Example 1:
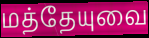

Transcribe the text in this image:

மத்தேயுவை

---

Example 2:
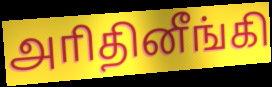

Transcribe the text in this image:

அரிதினீங்கி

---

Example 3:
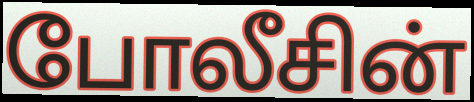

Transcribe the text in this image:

போலீசின்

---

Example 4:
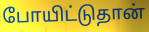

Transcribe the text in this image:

போயிட்டுதான்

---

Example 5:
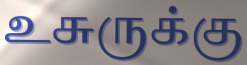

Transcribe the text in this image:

உசுருக்கு